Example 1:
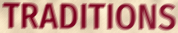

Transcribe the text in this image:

TRADITIONS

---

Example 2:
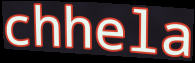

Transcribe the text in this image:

chhela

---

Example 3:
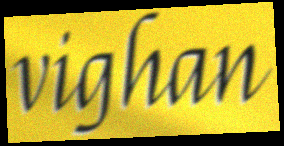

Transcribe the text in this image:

vighan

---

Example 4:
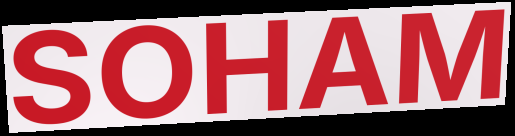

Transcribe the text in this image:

SOHAM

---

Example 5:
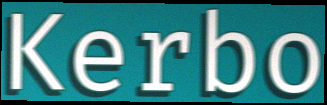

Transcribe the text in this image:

Kerbo